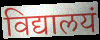
विद्यालयं